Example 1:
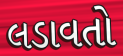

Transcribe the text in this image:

લડાવતો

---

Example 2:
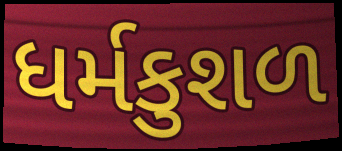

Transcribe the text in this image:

ધર્મકુશળ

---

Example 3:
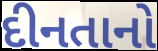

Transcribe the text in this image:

દીનતાનો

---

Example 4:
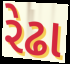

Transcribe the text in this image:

રેઢા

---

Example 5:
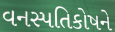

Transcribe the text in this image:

વનસ્પતિકોષને